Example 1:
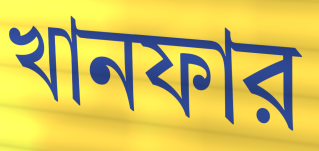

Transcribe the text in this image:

খানফার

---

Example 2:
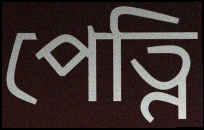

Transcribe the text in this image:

পেত্নি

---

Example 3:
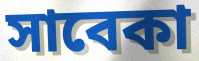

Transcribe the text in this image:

সাবেকা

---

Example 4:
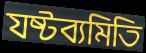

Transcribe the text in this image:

যষ্টব্যমিতি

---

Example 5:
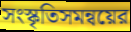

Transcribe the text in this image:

সংস্কৃতিসমন্বয়ের